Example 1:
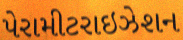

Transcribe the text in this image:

પેરામીટરાઇઝેશન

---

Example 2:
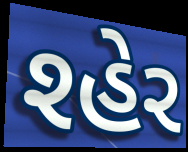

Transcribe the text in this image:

શ્હેર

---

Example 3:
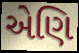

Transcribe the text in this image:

એણિ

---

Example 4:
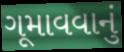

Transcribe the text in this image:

ગૂમાવવાનું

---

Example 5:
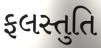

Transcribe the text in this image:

ફલસ્તુતિ